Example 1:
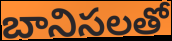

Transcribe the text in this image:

బానిసలతో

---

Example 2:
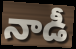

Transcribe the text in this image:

నాడీ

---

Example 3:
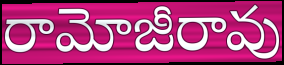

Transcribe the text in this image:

రామోజీరావు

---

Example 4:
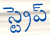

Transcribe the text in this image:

స్ట్రెప్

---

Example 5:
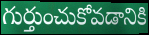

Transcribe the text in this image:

గుర్తుంచుకోవడానికి